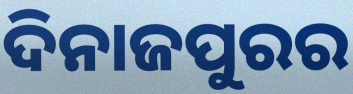
ଦିନାଜପୁରର